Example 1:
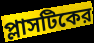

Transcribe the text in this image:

প্লাসটিকের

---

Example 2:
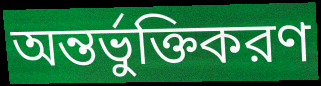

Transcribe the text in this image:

অন্তর্ভুক্তিকরণ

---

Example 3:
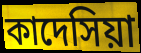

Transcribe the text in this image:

কাদেসিয়া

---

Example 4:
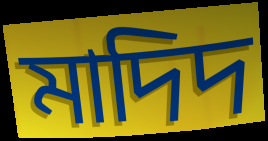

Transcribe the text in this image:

মাদিদ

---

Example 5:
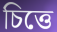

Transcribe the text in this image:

চিত্তে